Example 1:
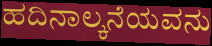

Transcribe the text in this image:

ಹದಿನಾಲ್ಕನೆಯವನು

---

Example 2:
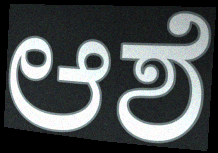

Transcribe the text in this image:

ಆಶೆ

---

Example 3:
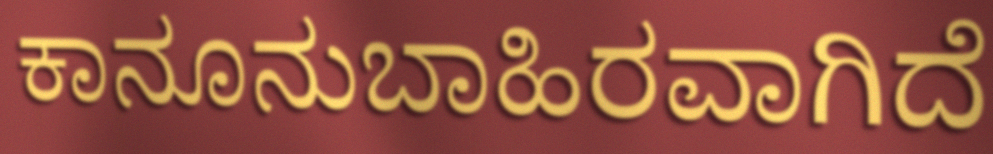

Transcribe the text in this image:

ಕಾನೂನುಬಾಹಿರವಾಗಿದೆ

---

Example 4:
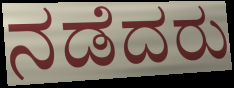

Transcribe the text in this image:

ನಡೆದರು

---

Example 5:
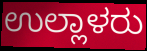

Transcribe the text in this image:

ಉಲ್ಲಾಳರು